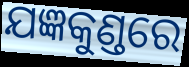
ଯଜ୍ଞକୁଣ୍ଡରେ